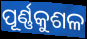
ପୂର୍ଣ୍ଣକୁଶଳ